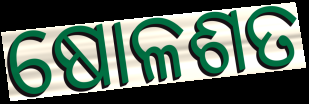
ଷୋଳଶତ